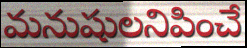
మనుషులనిపించే